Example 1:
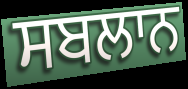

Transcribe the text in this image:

ਸਬਲਾਨ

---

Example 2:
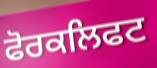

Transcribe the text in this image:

ਫੋਰਕਲਿਫਟ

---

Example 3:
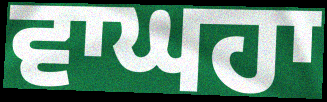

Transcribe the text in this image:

ਵਾਘਹਾ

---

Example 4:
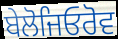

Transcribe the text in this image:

ਬੇਲੋਜਿਓਰੋਵ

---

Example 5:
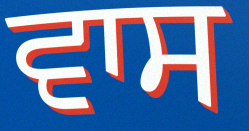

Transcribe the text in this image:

ਵਾਸ